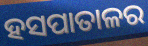
ହସପାତାଳର